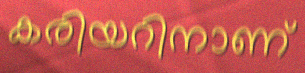
കരിയറിനാണ്